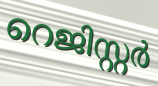
റെജിസ്റ്റർ